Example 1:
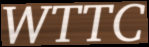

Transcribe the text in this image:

WTTC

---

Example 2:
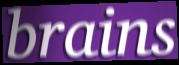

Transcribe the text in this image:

brains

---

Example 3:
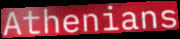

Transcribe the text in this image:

Athenians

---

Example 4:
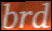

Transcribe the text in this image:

brd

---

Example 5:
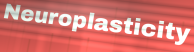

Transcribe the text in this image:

Neuroplasticity